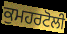
ਕੁਮਹਰਟੋਲੀ